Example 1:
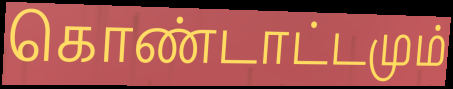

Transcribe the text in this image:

கொண்டாட்டமும்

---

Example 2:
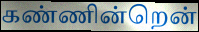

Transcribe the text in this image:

கண்ணின்றென்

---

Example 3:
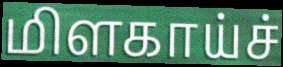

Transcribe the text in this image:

மிளகாய்ச்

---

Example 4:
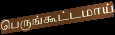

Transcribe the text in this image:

பெருங்கூட்டமாய்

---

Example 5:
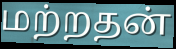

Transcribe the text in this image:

மற்றதன்